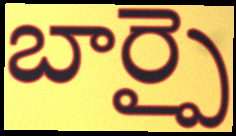
బార్పై